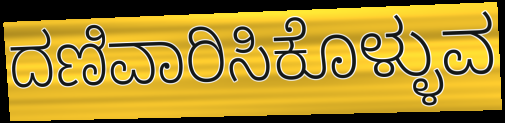
ದಣಿವಾರಿಸಿಕೊಳ್ಳುವ